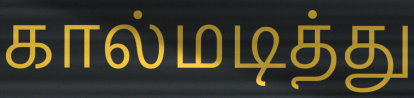
கால்மடித்து